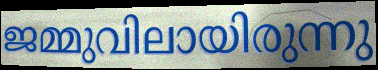
ജമ്മുവിലായിരുന്നു